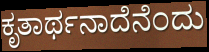
ಕೃತಾರ್ಥನಾದೆನೆಂದು